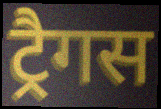
ट्रैगस